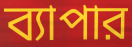
ব্যাপার